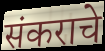
संकराचे